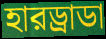
হারড্রাডা